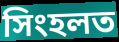
সিংহলত